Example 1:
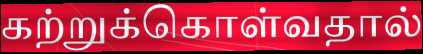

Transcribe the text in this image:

கற்றுக்கொள்வதால்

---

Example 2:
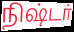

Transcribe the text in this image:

நிஷ்டர்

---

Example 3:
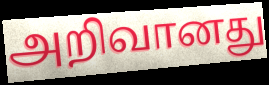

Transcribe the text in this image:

அறிவானது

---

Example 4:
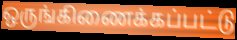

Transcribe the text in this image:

ஒருங்கிணைக்கப்பட்டு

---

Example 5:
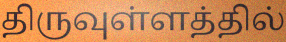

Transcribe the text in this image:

திருவுள்ளத்தில்